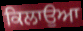
ਕਿਲਾਉਆ